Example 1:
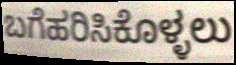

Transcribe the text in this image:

ಬಗೆಹರಿಸಿಕೊಳ್ಳಲು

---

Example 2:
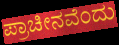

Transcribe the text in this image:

ಪ್ರಾಚೀನವೆಂದು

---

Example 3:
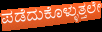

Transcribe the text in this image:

ಪಡೆದುಕೊಳ್ಳುತ್ತಲೇ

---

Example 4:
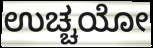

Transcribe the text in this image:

ಉಚ್ಚಯೋ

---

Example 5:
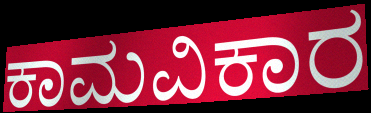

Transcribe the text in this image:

ಕಾಮವಿಕಾರ